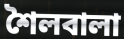
শৈলবালা